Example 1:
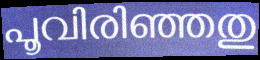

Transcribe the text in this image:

പൂവിരിഞ്ഞതു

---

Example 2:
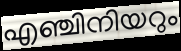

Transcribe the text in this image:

എഞ്ചിനിയറും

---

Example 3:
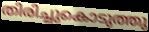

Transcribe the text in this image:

തിരിച്ചുകൊടുത്തു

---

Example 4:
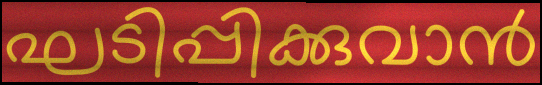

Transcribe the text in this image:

ഘടിപ്പിക്കുവാൻ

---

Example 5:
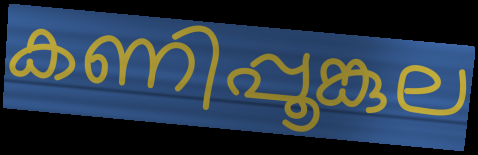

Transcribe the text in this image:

കണിപ്പൂങ്കുല